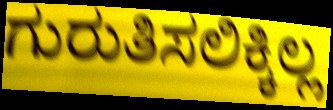
ಗುರುತಿಸಲಿಕ್ಕಿಲ್ಲ